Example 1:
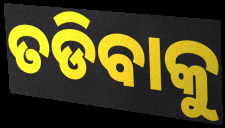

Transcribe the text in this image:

ତଡିବାକୁ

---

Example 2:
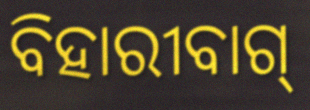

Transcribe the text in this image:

ବିହାରୀବାଗ୍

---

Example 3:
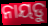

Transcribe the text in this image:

ନାୟଡୁ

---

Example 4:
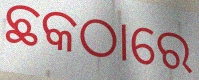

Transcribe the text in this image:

ଛକଠାରେ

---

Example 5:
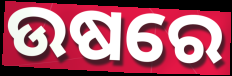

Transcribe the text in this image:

ଉଷରେ